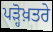
ਪੜ੍ਹੋਖ਼ਤਰੇ